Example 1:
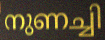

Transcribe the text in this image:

നുണച്ചി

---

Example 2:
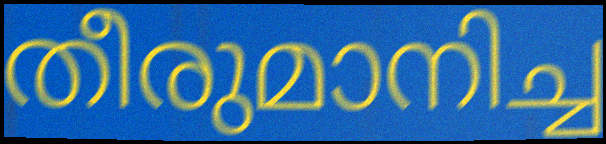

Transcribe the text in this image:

തീരുമാനിച്ച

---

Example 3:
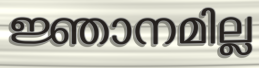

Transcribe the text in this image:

ജ്ഞാനമില്ല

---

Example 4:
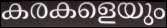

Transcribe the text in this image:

കരകളെയും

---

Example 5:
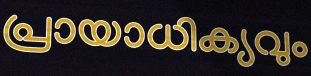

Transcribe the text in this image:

പ്രായാധിക്യവും